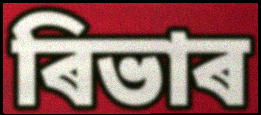
ৰিভাৰ